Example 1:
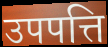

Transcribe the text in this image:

उपपत्ति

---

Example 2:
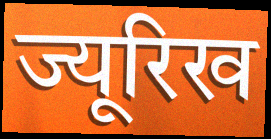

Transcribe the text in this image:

ज्यूरिख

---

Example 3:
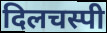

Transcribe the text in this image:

दिलचस्पी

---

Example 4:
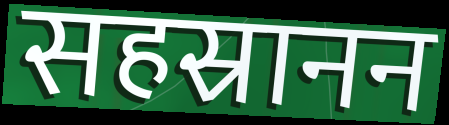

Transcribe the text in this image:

सहस्रानन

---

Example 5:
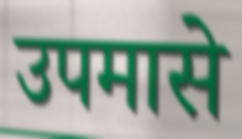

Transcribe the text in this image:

उपमासे